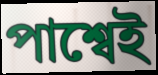
পাশ্বেই